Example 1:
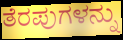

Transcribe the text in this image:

ತೆರಪುಗಳನ್ನು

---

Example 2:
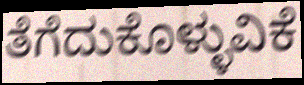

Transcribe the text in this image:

ತೆಗೆದುಕೊಳ್ಳುವಿಕೆ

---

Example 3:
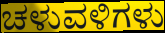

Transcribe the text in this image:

ಚಳುವಳಿಗಳು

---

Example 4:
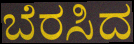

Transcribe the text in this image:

ಬೆರಸಿದ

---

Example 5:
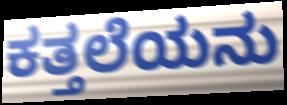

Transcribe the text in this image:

ಕತ್ತಲೆಯನು